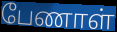
பேணாள்